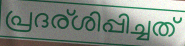
പ്രദര്ശിപ്പിച്ചത്